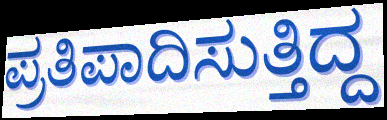
ಪ್ರತಿಪಾದಿಸುತ್ತಿದ್ದ